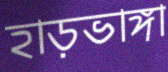
হাড়ভাঙ্গা